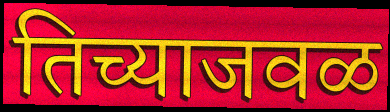
तिच्याजवळ